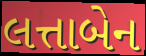
લત્તાબેન